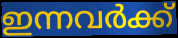
ഇന്നവർക്ക്